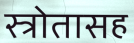
स्त्रोतासह